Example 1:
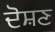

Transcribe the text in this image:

ਦੋਸ਼ਣ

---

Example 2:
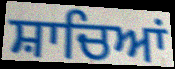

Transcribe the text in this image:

ਸ਼ਾਚਿਆਂ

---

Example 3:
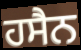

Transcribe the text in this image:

ਹਸੈਨ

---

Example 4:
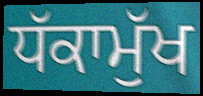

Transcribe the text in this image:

ਧੱਕਾਮੁੱਖ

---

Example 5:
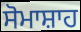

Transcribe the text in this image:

ਸੋਮਾਸ਼ਾਹ